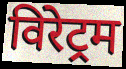
विरेट्रम